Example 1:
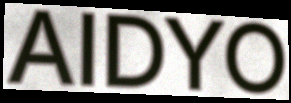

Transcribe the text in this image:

AIDYO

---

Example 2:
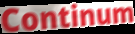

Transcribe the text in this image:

Continum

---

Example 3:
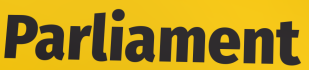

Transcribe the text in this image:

Parliament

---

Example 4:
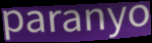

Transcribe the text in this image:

paranyo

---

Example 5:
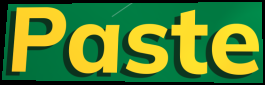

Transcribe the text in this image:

Paste